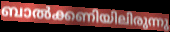
ബാൽക്കണിയിലിരുന്നു